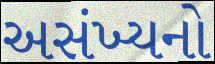
અસંખ્યનો